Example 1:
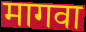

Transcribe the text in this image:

मागवा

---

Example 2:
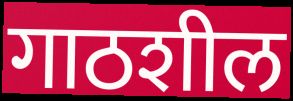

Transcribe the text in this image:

गाठशील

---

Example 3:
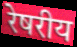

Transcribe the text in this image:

रेषरीय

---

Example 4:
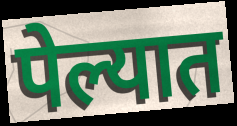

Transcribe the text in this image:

पेल्यात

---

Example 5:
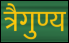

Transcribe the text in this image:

त्रैगुण्य